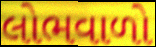
લોભવાળો